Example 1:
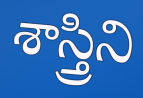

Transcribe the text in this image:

శాస్త్రిని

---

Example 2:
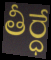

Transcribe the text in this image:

తీర్ధే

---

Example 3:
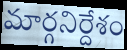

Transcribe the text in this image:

మార్గనిర్దేశం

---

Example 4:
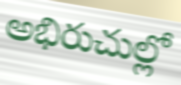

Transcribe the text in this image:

అభిరుచుల్లో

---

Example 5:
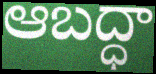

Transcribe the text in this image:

ఆబద్ధా